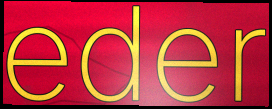
eder